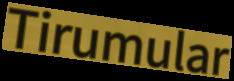
Tirumular